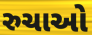
રુચાઓ